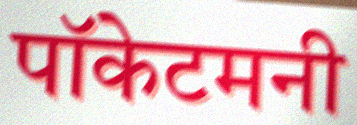
पॉकेटमनी